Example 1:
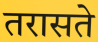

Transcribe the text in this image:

तरासते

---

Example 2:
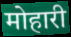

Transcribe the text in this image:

मोहारी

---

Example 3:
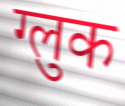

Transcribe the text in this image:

ग्लुक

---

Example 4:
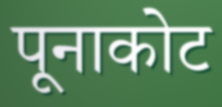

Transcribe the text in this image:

पूनाकोट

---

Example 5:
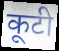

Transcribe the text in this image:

कूटी